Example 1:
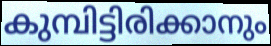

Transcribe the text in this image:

കുമ്പിട്ടിരിക്കാനും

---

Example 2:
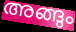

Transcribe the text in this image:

അങ്ങും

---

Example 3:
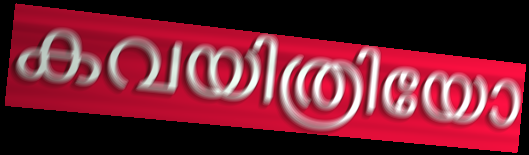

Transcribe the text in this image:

കവയിത്രിയോ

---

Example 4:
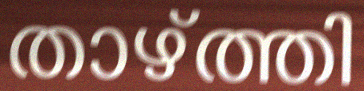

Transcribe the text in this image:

താഴ്ത്തി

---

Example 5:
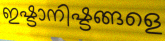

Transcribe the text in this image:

ഇഷ്ടാനിഷ്ടങ്ങളെ